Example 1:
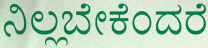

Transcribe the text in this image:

ನಿಲ್ಲಬೇಕೆಂದರೆ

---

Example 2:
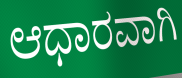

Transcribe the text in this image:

ಆಧಾರವಾಗಿ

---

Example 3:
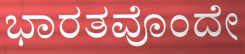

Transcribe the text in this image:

ಭಾರತವೊಂದೇ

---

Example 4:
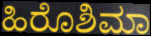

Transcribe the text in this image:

ಹಿರೊಶಿಮಾ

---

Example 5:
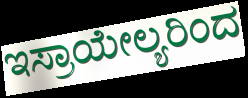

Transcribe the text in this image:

ಇಸ್ರಾಯೇಲ್ಯರಿಂದ